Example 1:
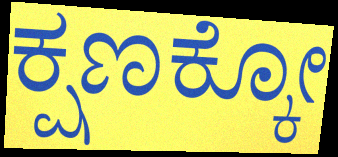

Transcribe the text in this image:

ಕ್ಷಣಕ್ಕೋ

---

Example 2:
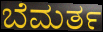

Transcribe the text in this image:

ಬೆಮರ್ತ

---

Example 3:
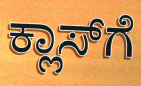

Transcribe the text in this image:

ಕ್ಲಾಸ್‍ಗೆ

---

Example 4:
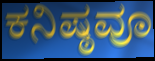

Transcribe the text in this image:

ಕನಿಷ್ಠವೂ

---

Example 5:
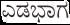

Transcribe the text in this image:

ಎಡಭಾಗ